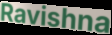
Ravishna